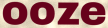
ooze